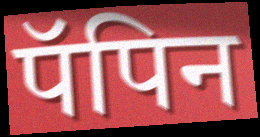
पॅपिन